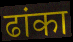
ढांका